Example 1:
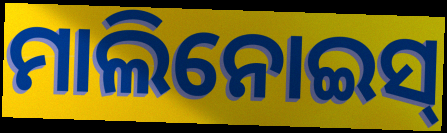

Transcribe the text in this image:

ମାଲିନୋଇସ୍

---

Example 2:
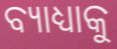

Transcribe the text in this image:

ବ୍ୟାଧ୍ୟାକୁ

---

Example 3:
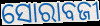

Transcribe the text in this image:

ସୋରାବଜୀ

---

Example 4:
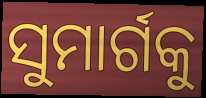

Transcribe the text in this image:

ସୁମାର୍ଗକୁ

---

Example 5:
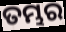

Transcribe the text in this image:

ତମ୍ଭର